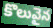
కొలువైన